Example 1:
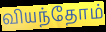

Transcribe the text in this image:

வியந்தோம்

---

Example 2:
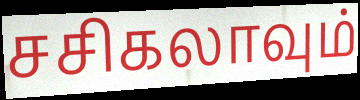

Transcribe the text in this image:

சசிகலாவும்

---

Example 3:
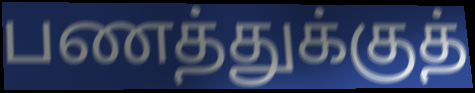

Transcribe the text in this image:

பணத்துக்குத்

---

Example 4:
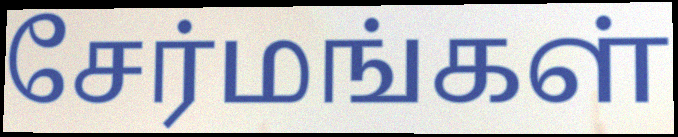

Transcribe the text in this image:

சேர்மங்கள்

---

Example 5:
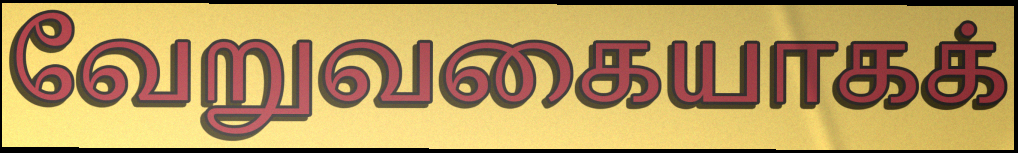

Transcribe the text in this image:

வேறுவகையாகக்